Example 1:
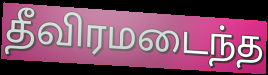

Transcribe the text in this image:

தீவிரமடைந்த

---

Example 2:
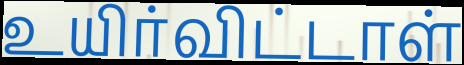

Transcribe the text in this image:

உயிர்விட்டாள்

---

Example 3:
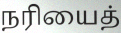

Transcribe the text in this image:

நரியைத்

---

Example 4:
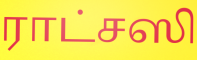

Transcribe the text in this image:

ராட்சஸி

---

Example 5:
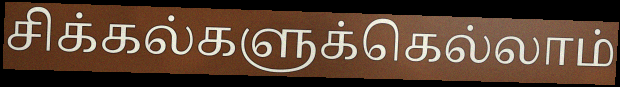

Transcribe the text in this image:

சிக்கல்களுக்கெல்லாம்